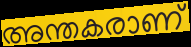
അന്തകരാണ്